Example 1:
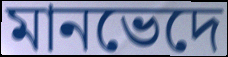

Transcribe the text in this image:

মানভেদে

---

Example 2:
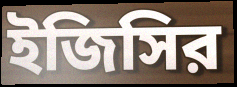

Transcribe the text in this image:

ইজিসির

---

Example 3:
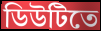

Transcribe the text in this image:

ডিউটিতে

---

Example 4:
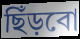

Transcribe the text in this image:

ছিঁড়বো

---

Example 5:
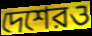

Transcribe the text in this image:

দেশেরও